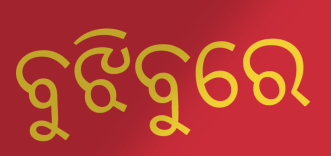
ବୁଝିବୁରେ